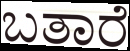
ಬತಾರೆ